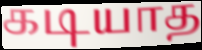
கடியாத